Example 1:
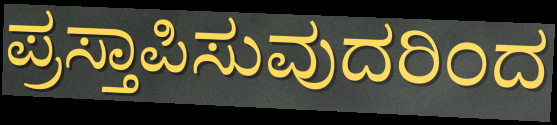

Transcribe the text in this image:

ಪ್ರಸ್ತಾಪಿಸುವುದರಿಂದ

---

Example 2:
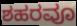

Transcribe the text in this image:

ಶಹರವೂ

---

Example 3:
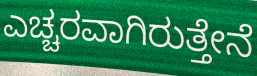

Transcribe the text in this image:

ಎಚ್ಚರವಾಗಿರುತ್ತೇನೆ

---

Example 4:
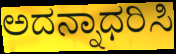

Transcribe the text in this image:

ಅದನ್ನಾಧರಿಸಿ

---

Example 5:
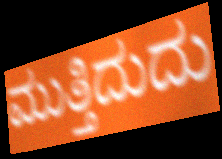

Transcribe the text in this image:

ಮುತ್ತಿದುದು